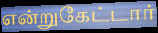
என்றுகேட்டார்